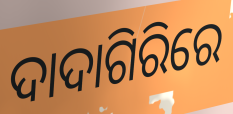
ଦାଦାଗିରିରେ